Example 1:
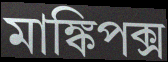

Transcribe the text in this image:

মাঙ্কিপক্স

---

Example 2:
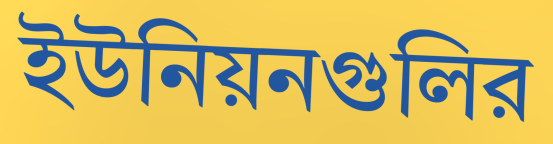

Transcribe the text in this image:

ইউনিয়নগুলির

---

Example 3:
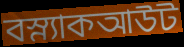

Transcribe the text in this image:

বস্ন্যাকআউট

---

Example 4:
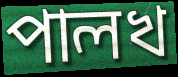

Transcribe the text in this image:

পালখ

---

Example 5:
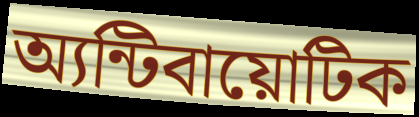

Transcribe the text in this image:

অ্যন্টিবায়োটিক